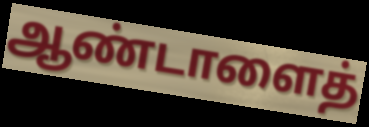
ஆண்டாளைத்